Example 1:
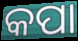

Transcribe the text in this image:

କପା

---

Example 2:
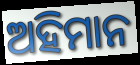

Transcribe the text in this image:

ଅହିମାନ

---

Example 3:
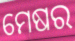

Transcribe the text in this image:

ମେଷର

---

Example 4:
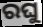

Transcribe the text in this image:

ରଘୁ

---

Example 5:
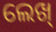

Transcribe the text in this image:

ଲେଖ୍